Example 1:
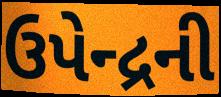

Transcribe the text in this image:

ઉપેન્દ્રની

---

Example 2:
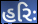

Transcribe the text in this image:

હરિઃ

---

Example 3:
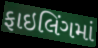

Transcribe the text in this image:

ફાઇલિંગમાં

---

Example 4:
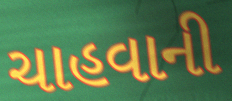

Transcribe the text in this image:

ચાહવાની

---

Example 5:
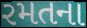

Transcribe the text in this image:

રમતના